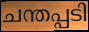
ചന്തപ്പടി